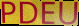
PDEU